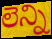
లెన్ని